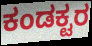
ಕಂಡಕ್ಟರ